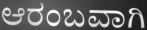
ಆರಂಬವಾಗಿ